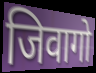
जिवागो